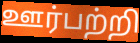
ஊர்பற்றி